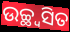
ଉଚ୍ଛ୍ୱସିତ